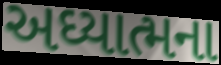
અઘ્યાત્મના